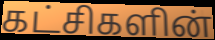
கட்சிகளின்